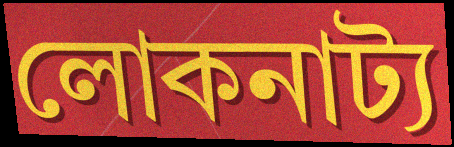
লোকনাট্য